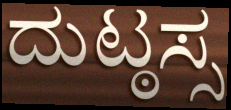
ದುಟ್ಠಸ್ಸ